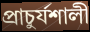
প্রাচুর্যশালী